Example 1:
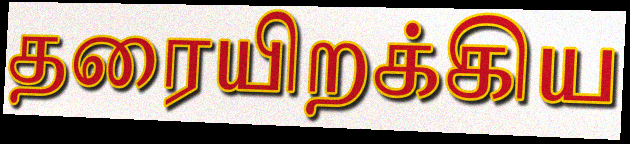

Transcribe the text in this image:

தரையிறக்கிய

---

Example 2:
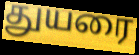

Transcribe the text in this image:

துயரை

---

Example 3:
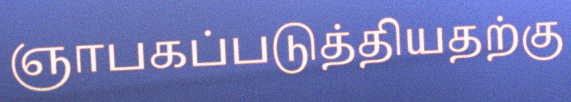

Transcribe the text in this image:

ஞாபகப்படுத்தியதற்கு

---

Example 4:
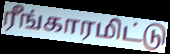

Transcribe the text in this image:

ரீங்காரமிட்டு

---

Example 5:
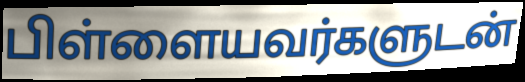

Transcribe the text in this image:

பிள்ளையவர்களுடன்